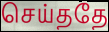
செய்ததே